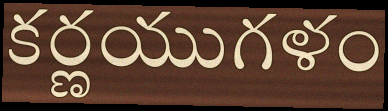
కర్ణయుగళం